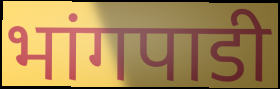
भांगपाडी